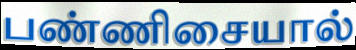
பண்ணிசையால்